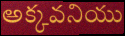
అక్కవనియు